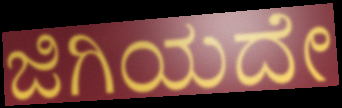
ಜಿಗಿಯದೇ